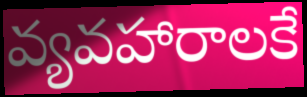
వ్యవహారాలకే